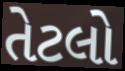
તેટલો